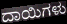
ದಾಯಿಗಳು